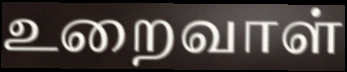
உறைவாள்